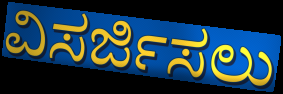
ವಿಸರ್ಜಿಸಲು